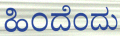
ಹಿಂದೆಂದು